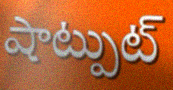
షాట్పుట్